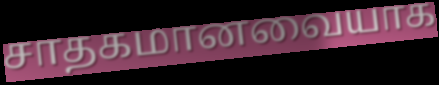
சாதகமானவையாக